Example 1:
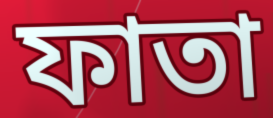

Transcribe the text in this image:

ফাতা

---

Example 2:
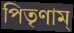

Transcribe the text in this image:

পিতৃণাম্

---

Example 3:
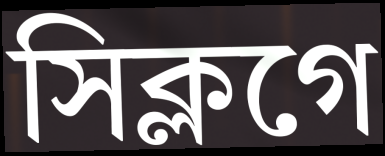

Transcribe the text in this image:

সিক্লগে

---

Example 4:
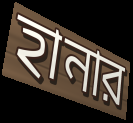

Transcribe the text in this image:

হানার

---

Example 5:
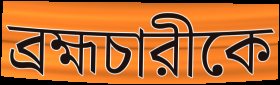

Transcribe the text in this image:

ব্রহ্মচারীকে